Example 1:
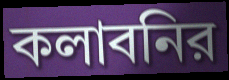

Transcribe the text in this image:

কলাবনির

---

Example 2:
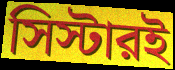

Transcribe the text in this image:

সিস্টারই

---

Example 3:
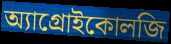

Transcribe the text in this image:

অ্যাগ্রোইকোলজি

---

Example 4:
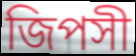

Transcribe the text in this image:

জিপসী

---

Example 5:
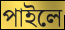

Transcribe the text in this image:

পাইলে